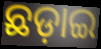
ଛଡ଼ାଇ